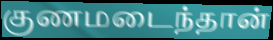
குணமடைந்தான்